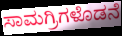
ಸಾಮಗ್ರಿಗಳೊಡನೆ